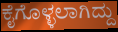
ಕೈಗೊಳ್ಳಲಾಗಿದ್ದು